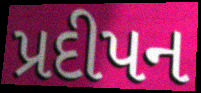
પ્રદીપન